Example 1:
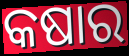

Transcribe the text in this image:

କଷାର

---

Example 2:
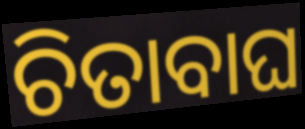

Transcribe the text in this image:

ଚିତାବାଘ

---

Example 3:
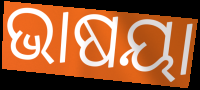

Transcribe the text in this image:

ଭାଷୟା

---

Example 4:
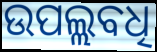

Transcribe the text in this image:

ଉପଲ୍ଲବଧି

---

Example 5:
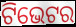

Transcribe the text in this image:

ଟିଭେଟର